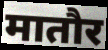
मातौर